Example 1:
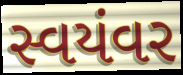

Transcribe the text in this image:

સ્વયંવર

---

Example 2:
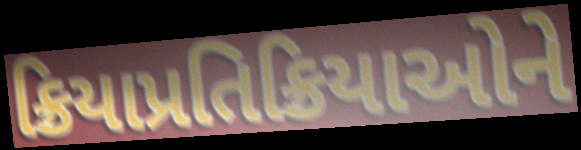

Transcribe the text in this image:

ક્રિયાપ્રતિક્રિયાઓને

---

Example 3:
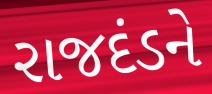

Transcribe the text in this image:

રાજદંડને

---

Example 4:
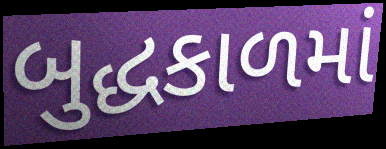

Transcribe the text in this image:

બુદ્ધકાળમાં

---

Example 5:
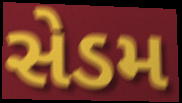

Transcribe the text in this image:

સેડમ